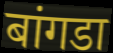
बांगडा